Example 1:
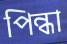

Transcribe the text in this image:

পিন্ধা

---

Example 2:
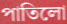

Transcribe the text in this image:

পাতিলো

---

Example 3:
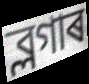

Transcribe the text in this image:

ব্লগাৰ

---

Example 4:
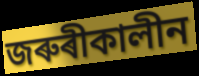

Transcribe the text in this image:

জৰুৰীকালীন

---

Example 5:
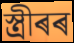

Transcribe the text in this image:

স্ত্ৰীৰৰ